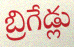
బ్రిగేడ్లు